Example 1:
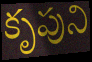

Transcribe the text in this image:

కృపుని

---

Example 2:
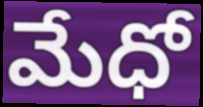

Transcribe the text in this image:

మేధో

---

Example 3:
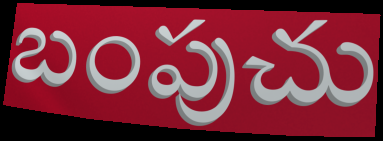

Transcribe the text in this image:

బంపుచు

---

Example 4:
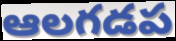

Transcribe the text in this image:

ఆలగడప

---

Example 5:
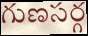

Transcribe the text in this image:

గుణసర్గ